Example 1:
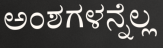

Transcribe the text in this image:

ಅಂಶಗಳನ್ನೆಲ್ಲ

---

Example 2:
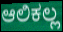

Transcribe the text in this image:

ಆಲಿಕಲ್ಲ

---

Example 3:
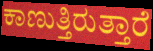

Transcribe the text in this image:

ಕಾಣುತ್ತಿರುತ್ತಾರೆ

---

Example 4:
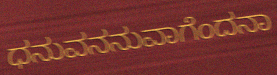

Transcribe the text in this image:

ಧನುವನನುವಾಗೆಂದನಾ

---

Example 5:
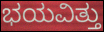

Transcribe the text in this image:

ಭಯವಿತ್ತು